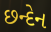
છન્દેન